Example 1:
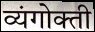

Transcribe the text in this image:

व्यंगोक्ती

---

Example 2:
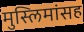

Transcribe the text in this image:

मुस्लिमांसह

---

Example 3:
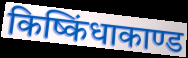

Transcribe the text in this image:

किष्किंधाकाण्ड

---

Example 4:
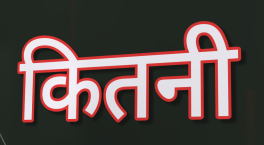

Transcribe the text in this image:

कितनी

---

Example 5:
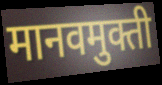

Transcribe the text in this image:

मानवमुक्ती